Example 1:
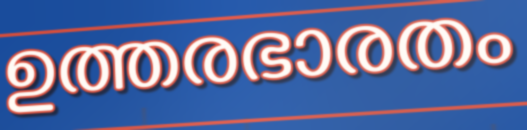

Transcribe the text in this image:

ഉത്തരഭാരതം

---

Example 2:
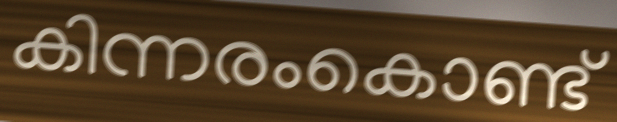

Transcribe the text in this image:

കിന്നരംകൊണ്ട്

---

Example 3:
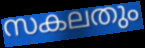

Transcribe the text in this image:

സകലതും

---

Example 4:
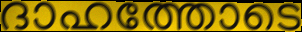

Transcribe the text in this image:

ദാഹത്തോടെ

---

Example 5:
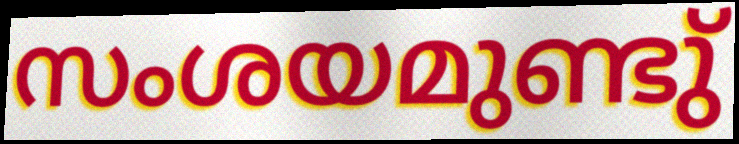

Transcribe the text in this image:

സംശയമുണ്ടു്